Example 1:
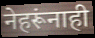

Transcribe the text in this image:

नेहरूंनाही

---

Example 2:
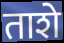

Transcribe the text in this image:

ताशे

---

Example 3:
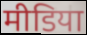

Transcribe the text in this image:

मीडिया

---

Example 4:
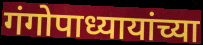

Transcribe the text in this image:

गंगोपाध्यायांच्या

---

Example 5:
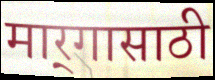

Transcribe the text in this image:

मार्गासाठी